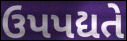
ઉપપદ્યતે